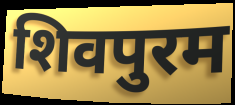
शिवपुरम